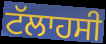
ਟੱਲਾਹਸੀ